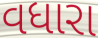
વધારા